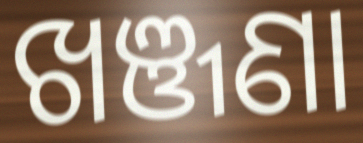
ଖଞ୍ଜଣା